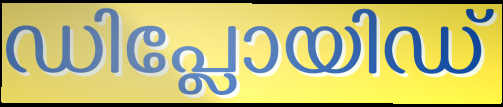
ഡിപ്ലോയിഡ്